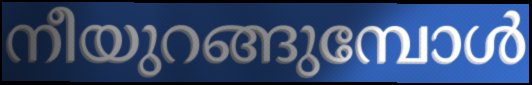
നീയുറങ്ങുമ്പോൾ